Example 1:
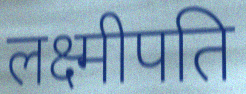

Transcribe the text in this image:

लक्ष्मीपति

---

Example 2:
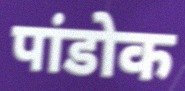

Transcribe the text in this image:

पांडोक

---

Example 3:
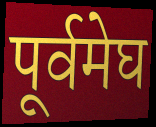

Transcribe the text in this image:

पूर्वमेघ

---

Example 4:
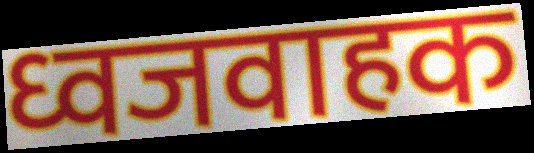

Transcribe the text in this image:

ध्वजवाहक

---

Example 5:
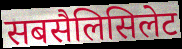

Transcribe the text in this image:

सबसैलिसिलेट